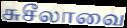
சுசீலாவை